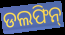
ଡଲଫିନ୍